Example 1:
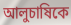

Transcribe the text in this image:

আলুচাষিকে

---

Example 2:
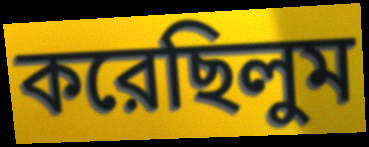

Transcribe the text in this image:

করেছিলুম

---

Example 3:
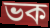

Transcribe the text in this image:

ভক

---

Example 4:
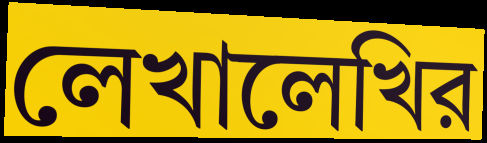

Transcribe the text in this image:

লেখালেখির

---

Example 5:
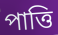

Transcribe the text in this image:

পাত্তি